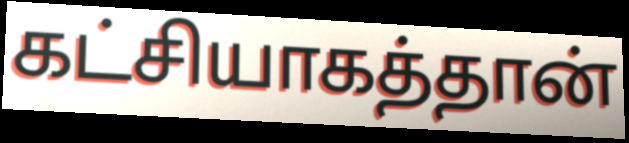
கட்சியாகத்தான்